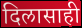
दिलासाही